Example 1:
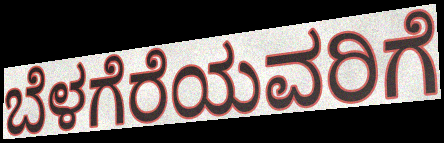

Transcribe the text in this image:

ಬೆಳಗೆರೆಯವರಿಗೆ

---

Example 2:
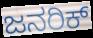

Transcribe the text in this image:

ಜನರಿಕ್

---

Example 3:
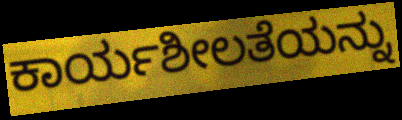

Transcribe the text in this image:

ಕಾರ್ಯಶೀಲತೆಯನ್ನು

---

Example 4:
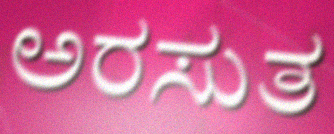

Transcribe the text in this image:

ಅರಸುತ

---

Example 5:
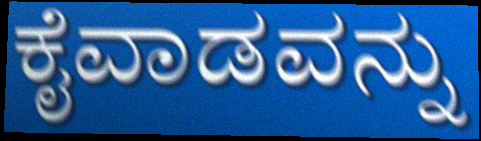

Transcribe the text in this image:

ಕೈವಾಡವನ್ನು